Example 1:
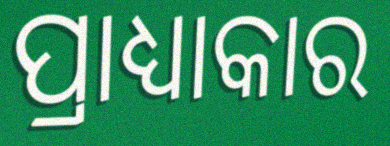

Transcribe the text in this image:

ପ୍ରାଧ୍ୟାକାର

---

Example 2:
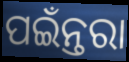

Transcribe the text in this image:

ପଇଁନ୍ତରା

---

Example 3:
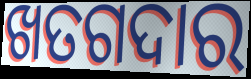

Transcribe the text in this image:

ଖତଗଦାର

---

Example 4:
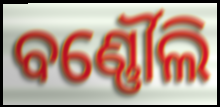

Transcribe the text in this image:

ବର୍ଣ୍ଣୌଲି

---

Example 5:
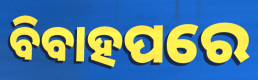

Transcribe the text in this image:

ବିବାହପରେ